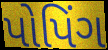
પોપિંગ